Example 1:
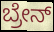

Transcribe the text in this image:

ಬ್ರೇನ್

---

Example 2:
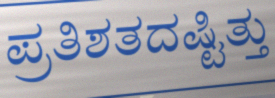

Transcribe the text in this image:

ಪ್ರತಿಶತದಷ್ಟಿತ್ತು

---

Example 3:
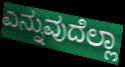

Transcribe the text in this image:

ಎನ್ನುವುದೆಲ್ಲಾ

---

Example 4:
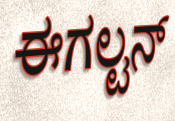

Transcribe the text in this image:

ಈಗಲ್ಟನ್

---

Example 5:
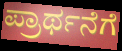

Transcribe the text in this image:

ಪ್ರಾರ್ಥನೆಗೆ